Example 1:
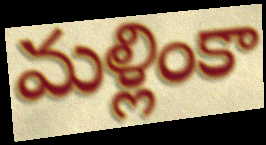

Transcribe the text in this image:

మళ్లింకా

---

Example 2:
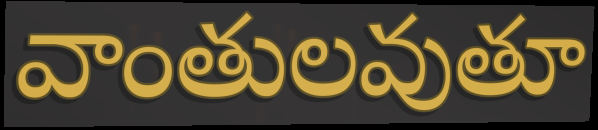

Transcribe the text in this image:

వాంతులవుతూ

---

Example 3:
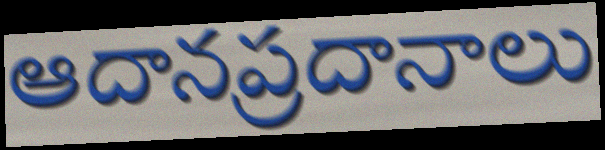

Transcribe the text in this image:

ఆదానప్రదానాలు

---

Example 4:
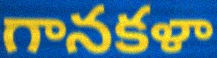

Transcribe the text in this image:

గానకళా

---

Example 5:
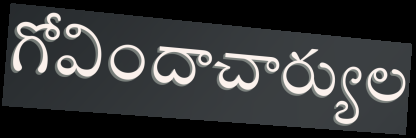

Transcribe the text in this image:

గోవిందాచార్యుల